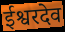
ईश्वरदेव